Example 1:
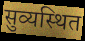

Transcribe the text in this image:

सुव्यस्थित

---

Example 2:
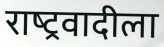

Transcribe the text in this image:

राष्ट्रवादीला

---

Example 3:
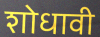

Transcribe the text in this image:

शोधावी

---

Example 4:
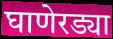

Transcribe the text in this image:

घाणेरड्या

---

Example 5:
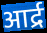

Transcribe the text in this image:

आर्द्र